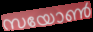
സയോൺ